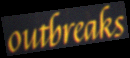
outbreaks